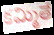
కమ్మితే